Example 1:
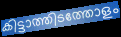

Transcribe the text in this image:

കിട്ടാത്തിടത്തോളം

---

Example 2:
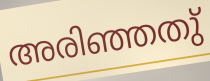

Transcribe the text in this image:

അരിഞ്ഞതു്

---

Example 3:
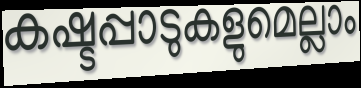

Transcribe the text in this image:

കഷ്ടപ്പാടുകളുമെല്ലാം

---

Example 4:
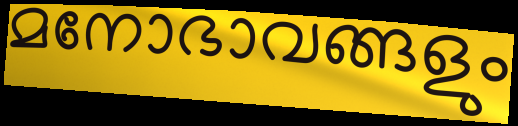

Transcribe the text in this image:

മനോഭാവങ്ങളും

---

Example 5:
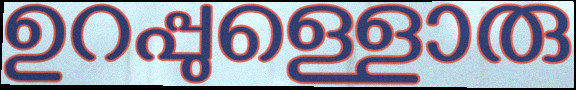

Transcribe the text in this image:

ഉറപ്പുള്ളൊരു